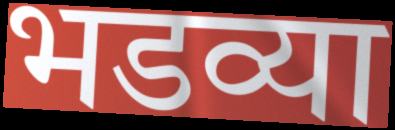
भडव्या